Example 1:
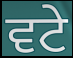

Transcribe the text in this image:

ਵਟੇ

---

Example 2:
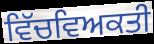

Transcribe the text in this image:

ਵਿੱਚਵਿਅਕਤੀ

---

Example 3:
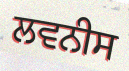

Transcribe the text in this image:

ਲਵਨੀਸ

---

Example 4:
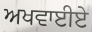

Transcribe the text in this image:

ਅਖਵਾਈਏ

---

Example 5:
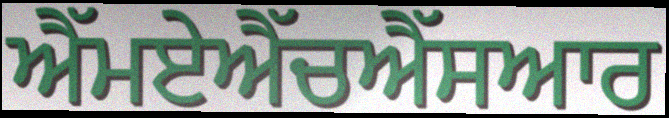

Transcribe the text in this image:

ਐੱਮਏਐੱਚਐੱਸਆਰ